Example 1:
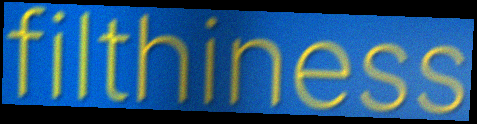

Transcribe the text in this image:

filthiness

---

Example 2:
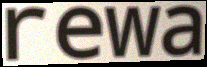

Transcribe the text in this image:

rewa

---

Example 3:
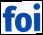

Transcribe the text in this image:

foi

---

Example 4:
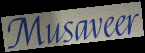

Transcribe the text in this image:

Musaveer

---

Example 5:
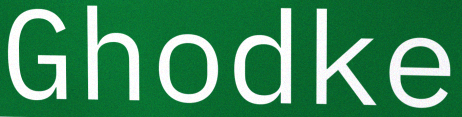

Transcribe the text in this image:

Ghodke